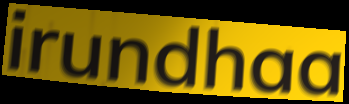
irundhaa